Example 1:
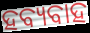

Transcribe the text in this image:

ହବ୍ୟବାହ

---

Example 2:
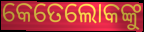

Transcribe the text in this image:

କେତେଲୋକଙ୍କୁ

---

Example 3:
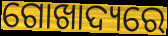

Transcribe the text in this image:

ଗୋଖାଦ୍ୟରେ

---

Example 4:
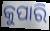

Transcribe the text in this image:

କୁପାରି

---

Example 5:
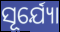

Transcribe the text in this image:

ସୂର୍ଯ୍ୟୋ